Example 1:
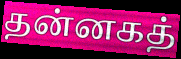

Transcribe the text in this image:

தன்னகத்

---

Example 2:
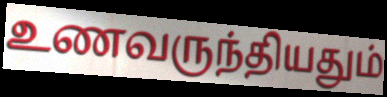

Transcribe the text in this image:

உணவருந்தியதும்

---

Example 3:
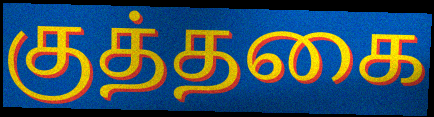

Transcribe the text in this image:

குத்தகை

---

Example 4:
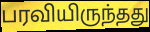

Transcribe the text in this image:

பரவியிருந்தது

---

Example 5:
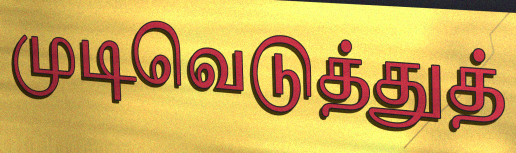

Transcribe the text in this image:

முடிவெடுத்துத்